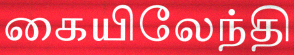
கையிலேந்தி